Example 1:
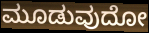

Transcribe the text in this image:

ಮೂಡುವುದೋ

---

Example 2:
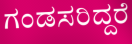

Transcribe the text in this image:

ಗಂಡಸರಿದ್ದರೆ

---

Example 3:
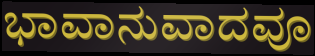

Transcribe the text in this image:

ಭಾವಾನುವಾದವೂ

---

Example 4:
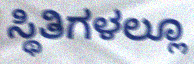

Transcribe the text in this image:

ಸ್ಥಿತಿಗಳಲ್ಲೂ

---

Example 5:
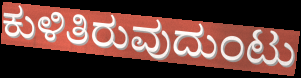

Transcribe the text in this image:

ಕುಳಿತಿರುವುದುಂಟು